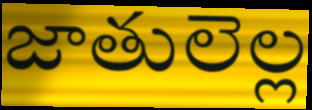
జాతులెల్ల